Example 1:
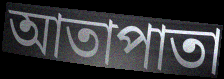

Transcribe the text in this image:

আতাপাতা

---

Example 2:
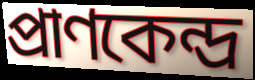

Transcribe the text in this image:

প্রাণকেন্দ্র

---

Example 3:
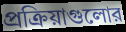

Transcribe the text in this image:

প্রক্রিয়াগুলোর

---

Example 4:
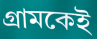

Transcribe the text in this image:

গ্রামকেই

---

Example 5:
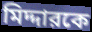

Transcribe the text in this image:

মিদ্দারকে